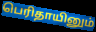
பெரிதாயினும்